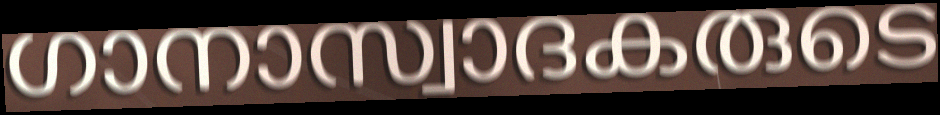
ഗാനാസ്വാദകരുടെ